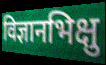
विज्ञानभिक्षु